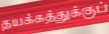
தயக்கத்துக்குப்